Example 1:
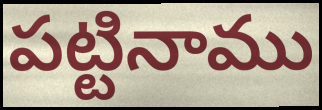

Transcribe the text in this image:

పట్టినాము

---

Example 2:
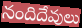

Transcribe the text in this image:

నందిదేవులు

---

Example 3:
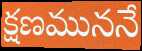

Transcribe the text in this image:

క్షణముననే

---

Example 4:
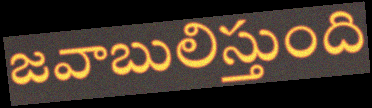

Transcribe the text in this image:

జవాబులిస్తుంది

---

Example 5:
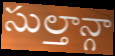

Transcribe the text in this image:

సుల్తాన్గా